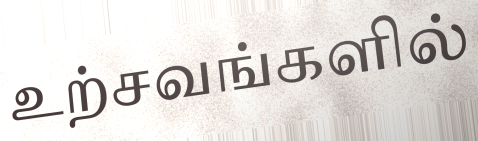
உற்சவங்களில்